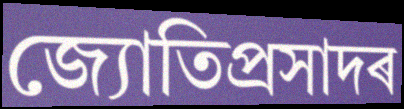
জ্যোতিপ্ৰসাদৰ